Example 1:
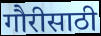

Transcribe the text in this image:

गौरीसाठी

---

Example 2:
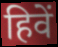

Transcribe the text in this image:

हिवें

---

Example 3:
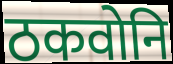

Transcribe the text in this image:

ठकवोनि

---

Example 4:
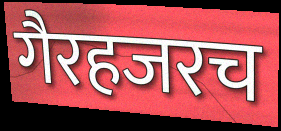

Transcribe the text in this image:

गैरहजरच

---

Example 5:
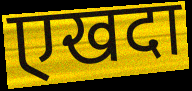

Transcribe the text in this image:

एखदा